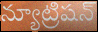
న్యూట్రిషన్